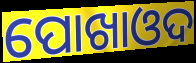
ପୋଖାଓଦ